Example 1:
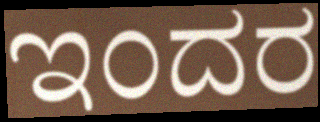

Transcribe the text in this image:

ಇಂದರ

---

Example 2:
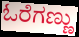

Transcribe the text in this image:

ಓರೆಗಣ್ಣು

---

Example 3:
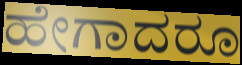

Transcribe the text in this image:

ಹೇಗಾದರೂ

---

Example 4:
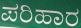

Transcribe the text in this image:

ಪರಿಹಾರ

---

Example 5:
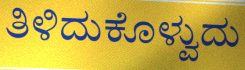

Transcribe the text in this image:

ತಿಳಿದುಕೊಳ್ವುದು